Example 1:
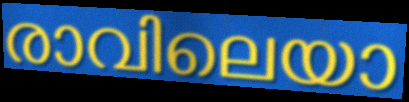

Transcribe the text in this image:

രാവിലെയാ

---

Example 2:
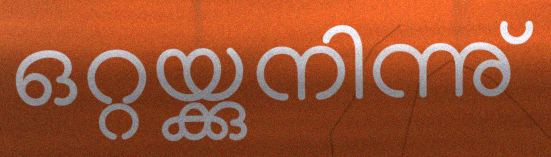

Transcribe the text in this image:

ഒറ്റയ്ക്കുനിന്നു്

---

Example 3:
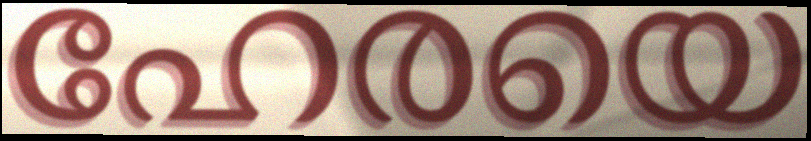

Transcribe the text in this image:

ഹേരയെ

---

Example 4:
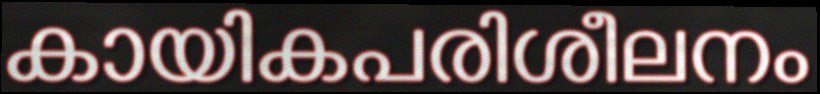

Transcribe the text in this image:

കായികപരിശീലനം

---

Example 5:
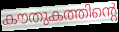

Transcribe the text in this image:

കൗതുകത്തിന്റെ